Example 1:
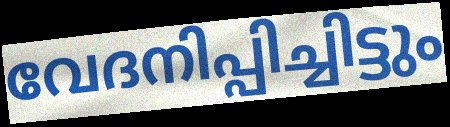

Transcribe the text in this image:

വേദനിപ്പിച്ചിട്ടും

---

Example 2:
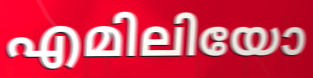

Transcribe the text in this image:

എമിലിയോ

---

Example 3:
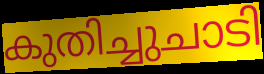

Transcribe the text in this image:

കുതിച്ചുചാടി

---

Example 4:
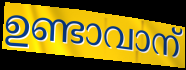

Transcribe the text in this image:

ഉണ്ടാവാന്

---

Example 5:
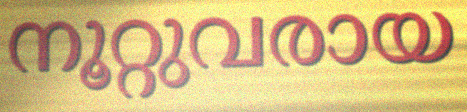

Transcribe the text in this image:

നൂറ്റുവരായ